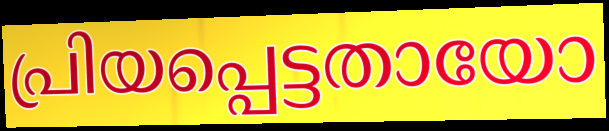
പ്രിയപ്പെട്ടതായോ